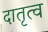
दातृत्व